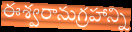
ఈశ్వరానుగ్రహాన్ని